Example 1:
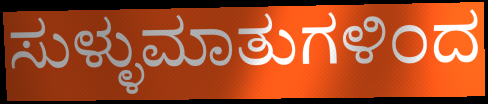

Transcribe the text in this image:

ಸುಳ್ಳುಮಾತುಗಳಿಂದ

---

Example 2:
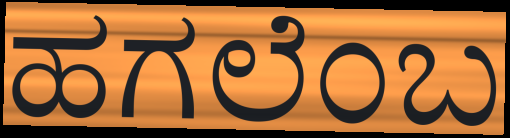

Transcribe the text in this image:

ಹಗಲೆಂಬ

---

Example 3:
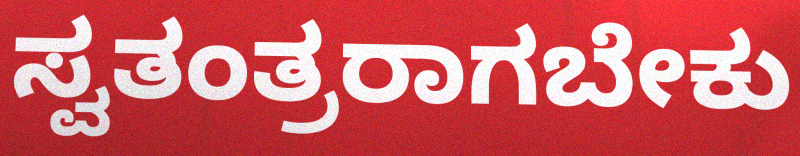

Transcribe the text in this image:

ಸ್ವತಂತ್ರರಾಗಬೇಕು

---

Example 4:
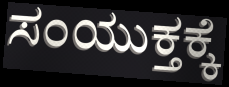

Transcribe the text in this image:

ಸಂಯುಕ್ತಕ್ಕೆ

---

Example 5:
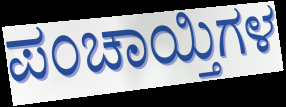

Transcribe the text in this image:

ಪಂಚಾಯ್ತಿಗಳ